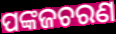
ପଙ୍କଜଚରଣ